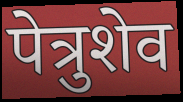
पेत्रुशेव